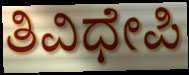
ತಿವಿಧೇಪಿ